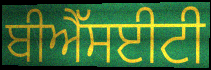
ਬੀਐੱਸਈਟੀ